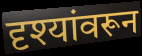
दृश्यांवरून